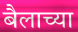
बैलाच्या